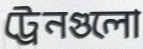
ট্রেনগুলো